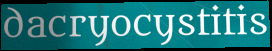
dacryocystitis